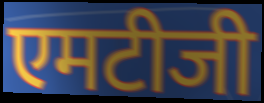
एमटीजी